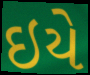
ઇયે